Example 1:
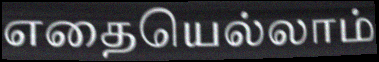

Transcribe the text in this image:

எதையெல்லாம்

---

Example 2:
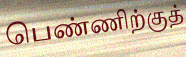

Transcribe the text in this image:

பெண்ணிற்குத்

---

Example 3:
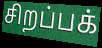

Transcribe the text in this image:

சிறப்பக்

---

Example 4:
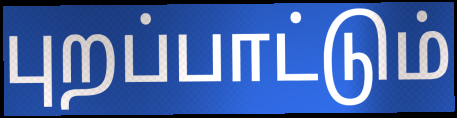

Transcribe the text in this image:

புறப்பாட்டும்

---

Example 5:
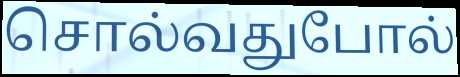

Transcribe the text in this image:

சொல்வதுபோல்